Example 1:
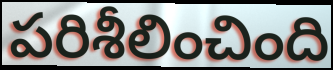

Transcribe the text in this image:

పరిశీలించింది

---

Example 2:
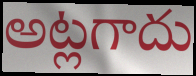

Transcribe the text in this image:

అట్లగాదు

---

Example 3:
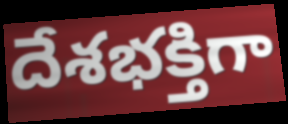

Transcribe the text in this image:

దేశభక్తిగా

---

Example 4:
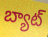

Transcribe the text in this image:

బ్యాట్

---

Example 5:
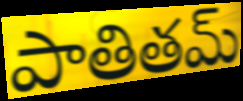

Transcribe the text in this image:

పాతితమ్